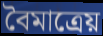
বৈমাত্রেয়